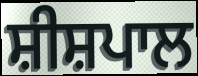
ਸ਼ੀਸ਼ਪਾਲ